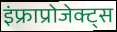
इंफ्राप्रोजेक्ट्स